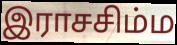
இராசசிம்ம